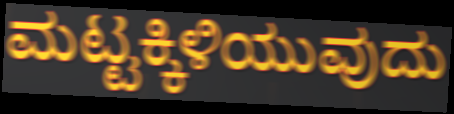
ಮಟ್ಟಕ್ಕಿಳಿಯುವುದು